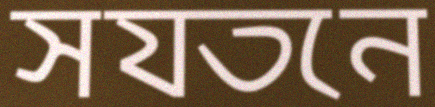
সযতনে